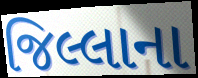
જિલ્લાના